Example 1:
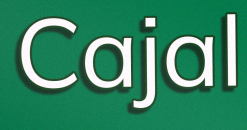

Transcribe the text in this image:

Cajal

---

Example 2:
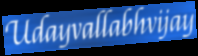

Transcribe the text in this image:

Udayvallabhvijay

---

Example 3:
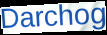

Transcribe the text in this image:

Darchog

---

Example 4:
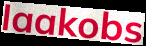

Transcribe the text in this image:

Iaakobs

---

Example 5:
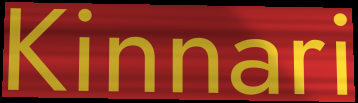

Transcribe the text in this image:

Kinnari